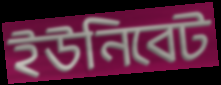
ইউনিবেট